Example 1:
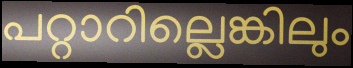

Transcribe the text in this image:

പറ്റാറില്ലെങ്കിലും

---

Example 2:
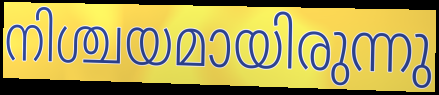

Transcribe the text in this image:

നിശ്ചയമായിരുന്നു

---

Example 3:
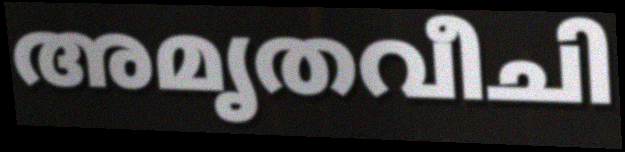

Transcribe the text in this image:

അമൃതവീചി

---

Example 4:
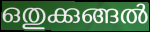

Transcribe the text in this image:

ഒതുക്കുങ്ങൽ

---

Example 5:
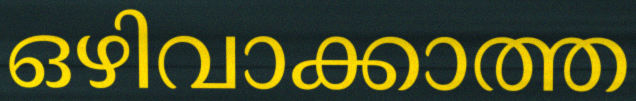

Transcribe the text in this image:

ഒഴിവാക്കാത്ത